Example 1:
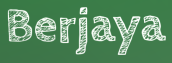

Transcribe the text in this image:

Berjaya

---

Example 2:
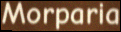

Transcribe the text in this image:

Morparia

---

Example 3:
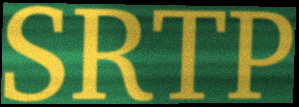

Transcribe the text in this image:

SRTP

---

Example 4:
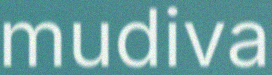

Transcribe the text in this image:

mudiva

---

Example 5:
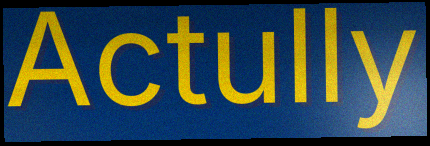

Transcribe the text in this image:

Actully